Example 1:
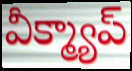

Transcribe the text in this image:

వీక్మ్యాప్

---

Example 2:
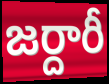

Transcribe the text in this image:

జర్దారీ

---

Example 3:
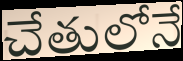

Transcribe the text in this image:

చేతులోనే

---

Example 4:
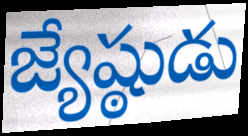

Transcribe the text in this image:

జ్యేష్ఠుడు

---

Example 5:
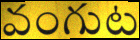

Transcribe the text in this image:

వంగుట